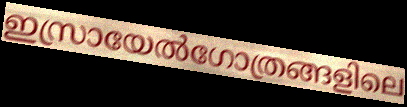
ഇസ്രായേൽഗോത്രങ്ങളിലെ